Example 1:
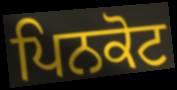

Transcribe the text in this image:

ਪਿਨਕੋਟ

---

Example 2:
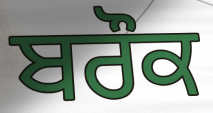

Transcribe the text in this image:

ਬਰੌਕ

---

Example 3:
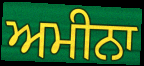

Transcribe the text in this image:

ਅਮੀਨਾ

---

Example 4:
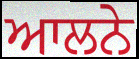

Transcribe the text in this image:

ਆਲਨੇ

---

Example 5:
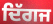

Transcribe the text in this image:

ਦਿੱਗਜ